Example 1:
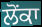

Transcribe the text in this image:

ਲੋਂਕਾ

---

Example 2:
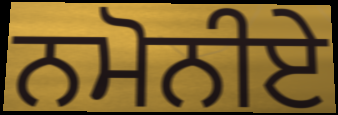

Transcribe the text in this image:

ਨਮੋਨੀਏ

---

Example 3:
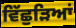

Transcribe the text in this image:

ਵਿੱਛੁੜਿਆਂ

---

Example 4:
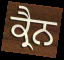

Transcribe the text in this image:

ਕ੍ਰੈਨ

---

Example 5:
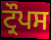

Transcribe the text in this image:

ਟ੍ਰੌਪਸ